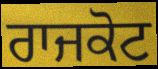
ਰਾਜਕੋਟ